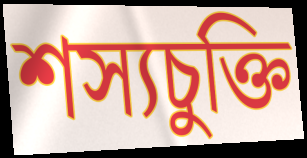
শস্যচুক্তি